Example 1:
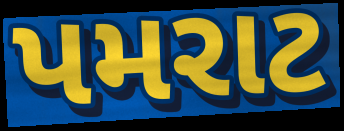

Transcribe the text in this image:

પમરાટ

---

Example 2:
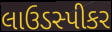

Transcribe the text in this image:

લાઉડસ્પીકર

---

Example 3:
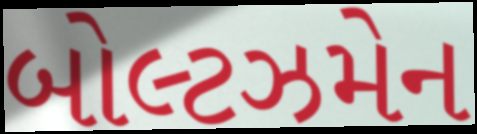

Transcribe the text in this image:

બોલ્ટઝમેન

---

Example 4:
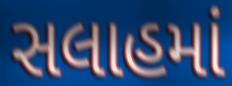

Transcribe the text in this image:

સલાહમાં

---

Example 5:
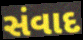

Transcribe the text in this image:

સંવાદ